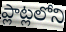
ప్లాట్లలోని